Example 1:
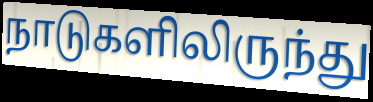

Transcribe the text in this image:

நாடுகளிலிருந்து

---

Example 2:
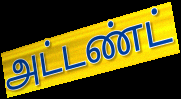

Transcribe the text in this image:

அட்டண்ட்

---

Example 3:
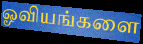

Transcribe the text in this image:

ஓவியங்களை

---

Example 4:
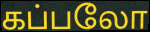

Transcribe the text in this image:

கப்பலோ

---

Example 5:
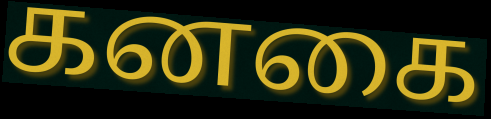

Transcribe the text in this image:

கனகை